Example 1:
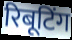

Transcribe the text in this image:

रिबूटिंग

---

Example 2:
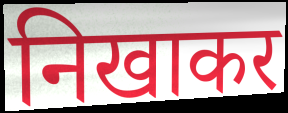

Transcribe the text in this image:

निखाकर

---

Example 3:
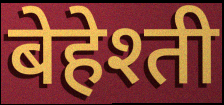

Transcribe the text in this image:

बेहेश्ती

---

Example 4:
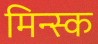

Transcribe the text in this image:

मिन्स्क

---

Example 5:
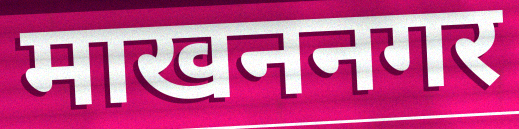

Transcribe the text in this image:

माखननगर